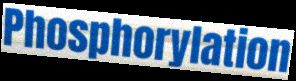
Phosphorylation